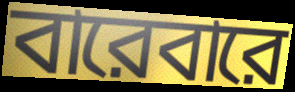
বারেবারে